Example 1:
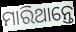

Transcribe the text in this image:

ମାରିଥାନ୍ତେ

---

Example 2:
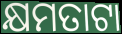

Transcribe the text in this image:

କ୍ଷମତାଟା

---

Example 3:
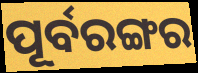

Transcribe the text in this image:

ପୂର୍ବରଙ୍ଗର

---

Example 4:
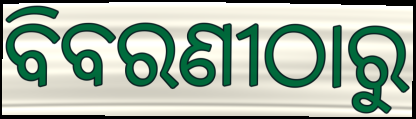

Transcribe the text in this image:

ବିବରଣୀଠାରୁ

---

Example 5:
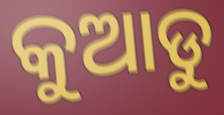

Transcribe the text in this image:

କୁଆଡୁ